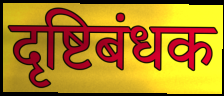
दृष्टिबंधक